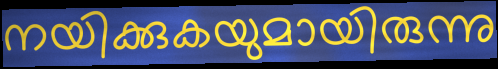
നയിക്കുകയുമായിരുന്നു